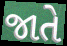
જાતે